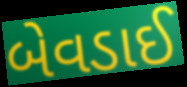
બેવડાઈ